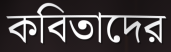
কবিতাদের